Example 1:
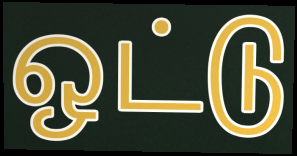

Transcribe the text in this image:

ஒட்டு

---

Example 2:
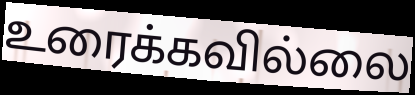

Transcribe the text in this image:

உரைக்கவில்லை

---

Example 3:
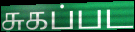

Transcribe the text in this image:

சுகப்பட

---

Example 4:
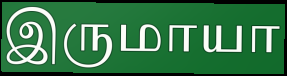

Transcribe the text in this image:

இருமாயா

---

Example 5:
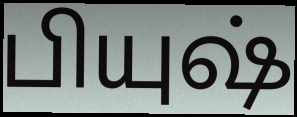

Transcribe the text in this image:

பியுஷ்